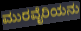
ಮುರವೈರಿಯನು